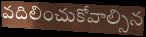
వదిలించుకోవాల్సిన